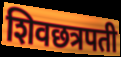
शिवछत्रपती